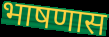
भाषणास